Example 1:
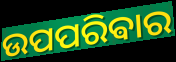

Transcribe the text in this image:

ଉପପରିଵାର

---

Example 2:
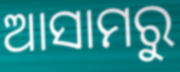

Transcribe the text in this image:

ଆସାମରୁ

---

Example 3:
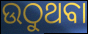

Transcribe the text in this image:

ଉଠୁଥବା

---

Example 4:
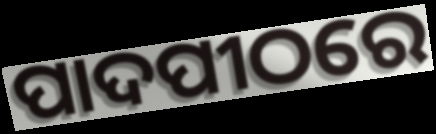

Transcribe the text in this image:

ପାଦପୀଠରେ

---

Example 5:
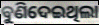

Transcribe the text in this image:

ବୁଣିଦେଇଥିଲା